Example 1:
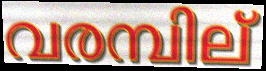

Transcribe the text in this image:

വരമ്പില്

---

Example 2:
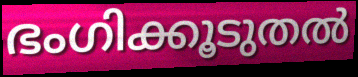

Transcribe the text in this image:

ഭംഗിക്കൂടുതൽ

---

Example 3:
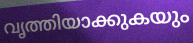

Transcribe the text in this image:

വൃത്തിയാക്കുകയും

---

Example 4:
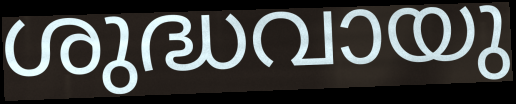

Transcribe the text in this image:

ശുദ്ധവായു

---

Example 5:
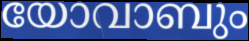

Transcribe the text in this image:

യോവാബും